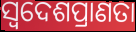
ସ୍ଵଦେଶପ୍ରାଣତା